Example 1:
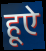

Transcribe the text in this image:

हूऐ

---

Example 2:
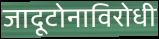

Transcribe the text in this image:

जादूटोनाविरोधी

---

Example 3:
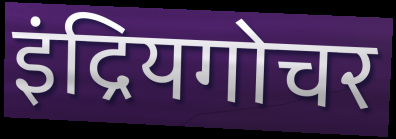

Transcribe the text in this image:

इंद्रियगोचर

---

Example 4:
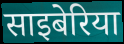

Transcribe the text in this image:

साइबेरिया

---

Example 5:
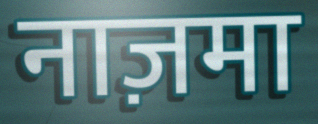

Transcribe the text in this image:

नाज़मा